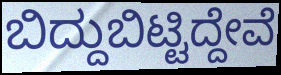
ಬಿದ್ದುಬಿಟ್ಟಿದ್ದೇವೆ